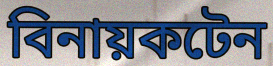
বিনায়কটেন